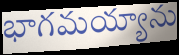
భాగమయ్యాను